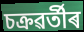
চক্ৰৱৰ্তীৰ